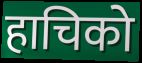
हाचिको